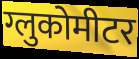
ग्लुकोमीटर